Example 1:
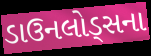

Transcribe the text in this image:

ડાઉનલોડ્સના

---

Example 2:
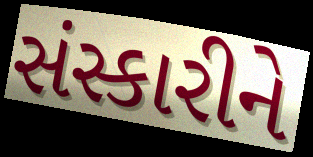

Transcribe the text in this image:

સંસ્કારીને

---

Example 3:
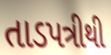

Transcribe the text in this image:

તાડપત્રીથી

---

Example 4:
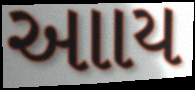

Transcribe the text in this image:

આાય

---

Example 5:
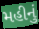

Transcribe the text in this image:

મહીનું